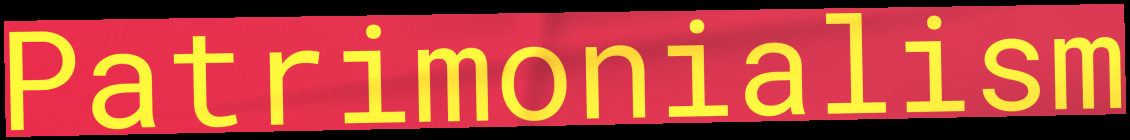
Patrimonialism